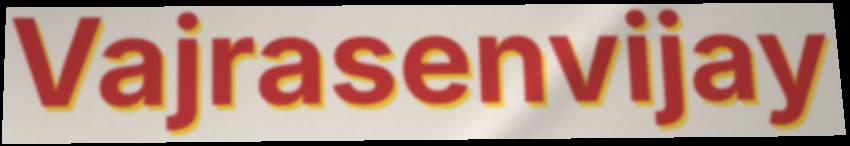
Vajrasenvijay